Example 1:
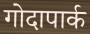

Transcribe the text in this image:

गोदापार्क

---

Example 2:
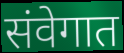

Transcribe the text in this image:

संवेगात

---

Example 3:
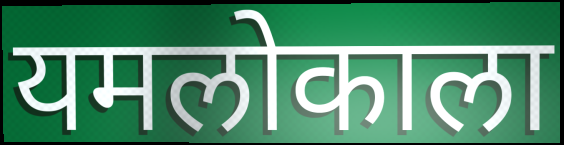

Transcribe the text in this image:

यमलोकाला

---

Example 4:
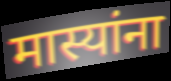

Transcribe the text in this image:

मास्यांना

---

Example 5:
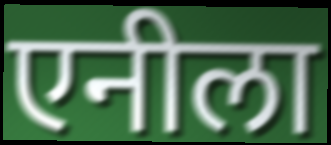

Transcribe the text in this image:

एनीला